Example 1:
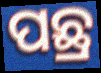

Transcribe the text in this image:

ପଛ୍ର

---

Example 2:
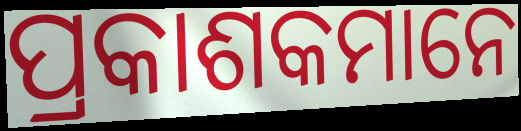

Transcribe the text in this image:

ପ୍ରକାଶକମାନେ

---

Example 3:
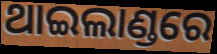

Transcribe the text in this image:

ଥାଇଲାଣ୍ଡରେ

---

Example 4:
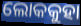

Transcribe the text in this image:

ଲୋକକୁହା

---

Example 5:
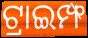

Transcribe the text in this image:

ଟ୍ରାଇମ୍ଫ